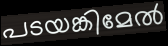
പടയങ്കിമേൽ